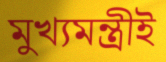
মুখ্যমন্ত্রীই